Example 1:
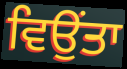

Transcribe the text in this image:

ਵਿਉਂਤਾ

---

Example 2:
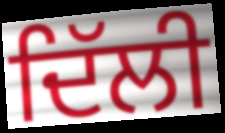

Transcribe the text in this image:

ਦਿੱਲੀ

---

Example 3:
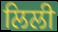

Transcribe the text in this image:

ਲਿਲੀ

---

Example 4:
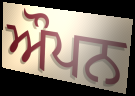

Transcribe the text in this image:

ਔਪਨ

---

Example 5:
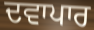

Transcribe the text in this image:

ਦਵਾਪਾਰ